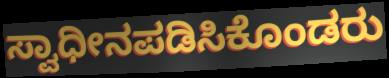
ಸ್ವಾಧೀನಪಡಿಸಿಕೊಂಡರು